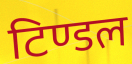
टिण्डल